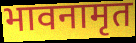
भावनामृत